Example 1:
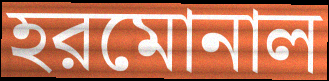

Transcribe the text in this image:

হরমোনাল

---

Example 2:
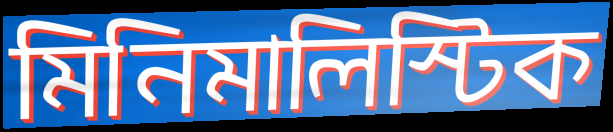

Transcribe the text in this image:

মিনিমালিস্টিক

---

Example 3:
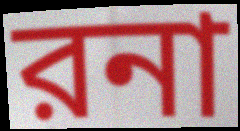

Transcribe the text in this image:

রনা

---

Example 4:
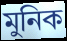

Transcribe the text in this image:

মুনিক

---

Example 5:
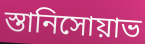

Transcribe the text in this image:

স্তানিসোয়াভ